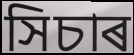
সিচাৰ